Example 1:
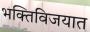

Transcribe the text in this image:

भक्तिविजयात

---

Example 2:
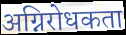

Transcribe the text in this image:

अग्निरोधकता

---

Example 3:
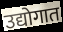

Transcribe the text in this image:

उद्योगात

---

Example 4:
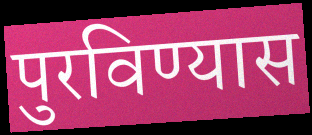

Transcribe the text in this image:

पुरविण्यास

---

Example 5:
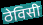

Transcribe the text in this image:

ठेविसी